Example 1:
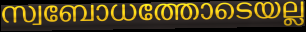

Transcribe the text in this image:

സ്വബോധത്തോടെയല്ല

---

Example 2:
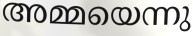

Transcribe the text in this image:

അമ്മയെന്നു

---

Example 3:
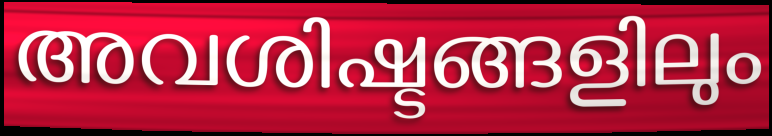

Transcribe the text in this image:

അവശിഷ്ടങ്ങളിലും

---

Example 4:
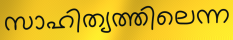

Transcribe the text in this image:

സാഹിത്യത്തിലെന്ന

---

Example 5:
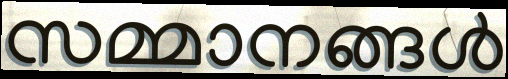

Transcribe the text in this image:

സമ്മാനങ്ങൾ